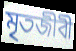
মৃতজীবী